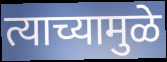
त्याच्यामुळे